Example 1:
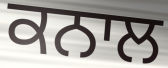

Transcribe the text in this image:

ਕਨਾਲ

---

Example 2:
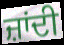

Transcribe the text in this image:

ਜ਼ਾਂਦੀ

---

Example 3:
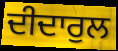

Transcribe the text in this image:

ਦੀਦਾਰੁਲ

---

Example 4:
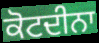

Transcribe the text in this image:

ਕੋਟਦੀਨਾ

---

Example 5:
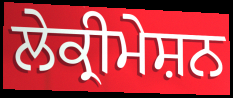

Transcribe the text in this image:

ਲੇਕ੍ਰੀਮੇਸ਼ਨ